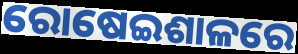
ରୋଷେଇଶାଳରେ